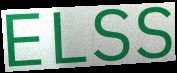
ELSS